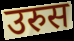
उरुस